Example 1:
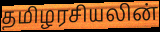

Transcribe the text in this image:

தமிழரசியலின்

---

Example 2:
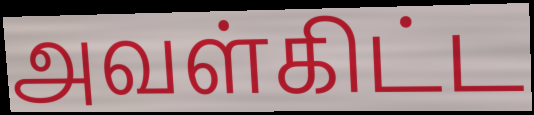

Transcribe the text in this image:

அவள்கிட்ட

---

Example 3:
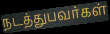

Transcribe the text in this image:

நடத்துபவர்கள்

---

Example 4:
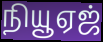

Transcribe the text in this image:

நியூஏஜ்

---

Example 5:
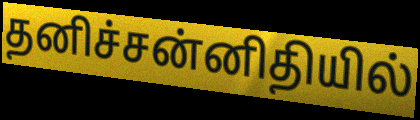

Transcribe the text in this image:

தனிச்சன்னிதியில்